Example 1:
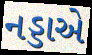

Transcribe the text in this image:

નડ્ડાએ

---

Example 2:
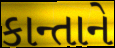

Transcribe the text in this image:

કાન્તાને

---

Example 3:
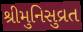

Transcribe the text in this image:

શ્રીમુનિસુવ્રત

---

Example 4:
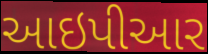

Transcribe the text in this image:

આઇપીઆર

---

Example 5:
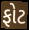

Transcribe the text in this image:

ફોટ